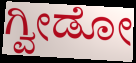
ಗ್ವೀಡೋ